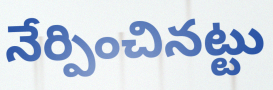
నేర్పించినట్టు